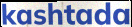
kashtada